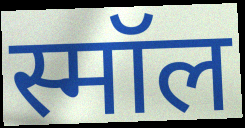
स्मॉल